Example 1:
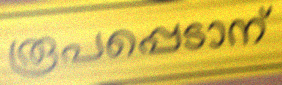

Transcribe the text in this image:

രൂപപ്പെടാന്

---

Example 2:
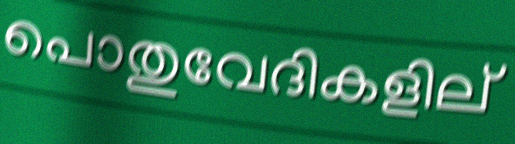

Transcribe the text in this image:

പൊതുവേദികളില്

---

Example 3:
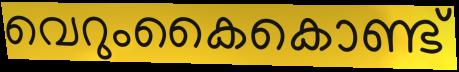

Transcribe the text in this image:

വെറുംകൈകൊണ്ട്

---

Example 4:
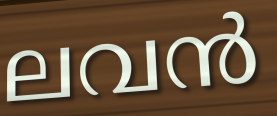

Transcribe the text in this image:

ലവൻ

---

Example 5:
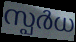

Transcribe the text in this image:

സ്പർധ